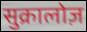
सुक्रालोज़